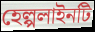
হেল্পলাইনটি